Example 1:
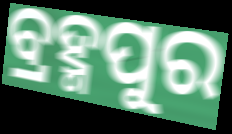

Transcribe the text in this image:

ବ୍ରହ୍ମପୁର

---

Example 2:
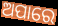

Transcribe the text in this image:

ଅପାରେ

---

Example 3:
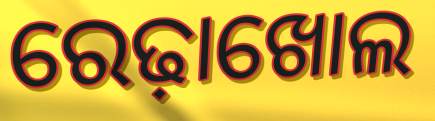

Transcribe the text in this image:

ରେଢ଼ାଖୋଲ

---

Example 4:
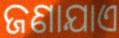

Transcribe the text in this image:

ଜଣାଯାଏ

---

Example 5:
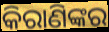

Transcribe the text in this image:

କିରାଣିଙ୍କର